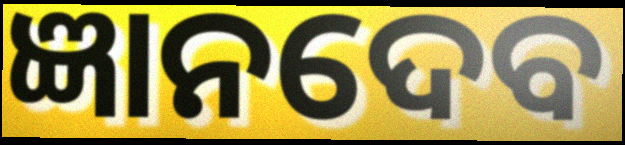
ଜ୍ଞାନଦେବ